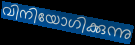
വിനിയോഗിക്കുന്നു